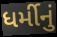
ધર્મીનું